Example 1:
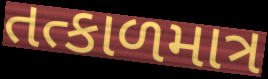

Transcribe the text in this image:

તત્કાળમાત્ર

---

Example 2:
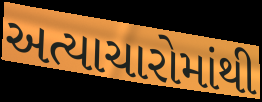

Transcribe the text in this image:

અત્યાચારોમાંથી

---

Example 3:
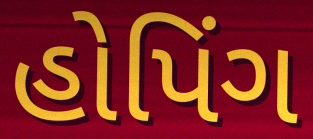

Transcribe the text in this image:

હોપિંગ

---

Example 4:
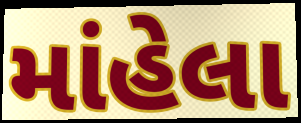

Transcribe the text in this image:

માંહેલા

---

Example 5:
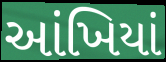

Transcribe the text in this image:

આંખિયાં